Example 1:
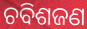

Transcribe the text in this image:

ଚବିଶଜଣ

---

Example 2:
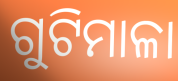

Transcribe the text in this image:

ଗୁଟିମାଳା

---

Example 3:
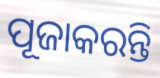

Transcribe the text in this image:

ପୂଜାକରନ୍ତି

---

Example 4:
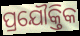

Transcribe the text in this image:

ପ୍ରଯୌକ୍ତିକ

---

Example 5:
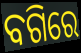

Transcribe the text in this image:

ବଗିରେ